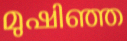
മുഷിഞ്ഞ